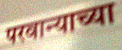
परवान्याच्या